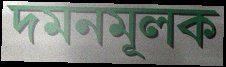
দমনমূলক